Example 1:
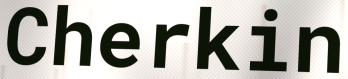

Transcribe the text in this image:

Cherkin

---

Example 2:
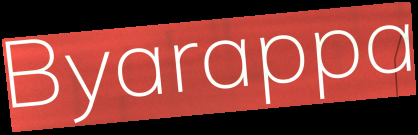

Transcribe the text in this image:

Byarappa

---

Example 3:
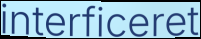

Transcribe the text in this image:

interficeret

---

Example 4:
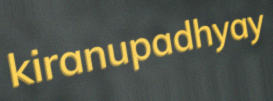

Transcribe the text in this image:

kiranupadhyay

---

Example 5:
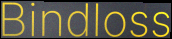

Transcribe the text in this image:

Bindloss